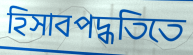
হিসাবপদ্ধতিতে